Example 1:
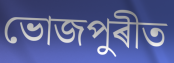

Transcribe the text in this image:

ভোজপুৰীত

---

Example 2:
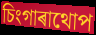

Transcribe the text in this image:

চিংগাৰাথোপ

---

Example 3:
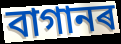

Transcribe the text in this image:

বাগানৰ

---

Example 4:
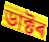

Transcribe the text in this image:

ডাক্টৰ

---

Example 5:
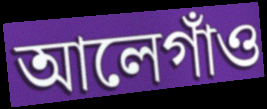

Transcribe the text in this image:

আলেগাঁও